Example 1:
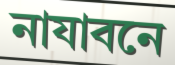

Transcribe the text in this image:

নাযাবনে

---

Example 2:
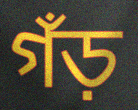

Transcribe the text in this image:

গঁড়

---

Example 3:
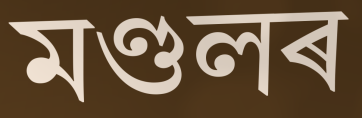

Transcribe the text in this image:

মণ্ডলৰ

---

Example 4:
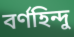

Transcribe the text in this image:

বৰ্ণহিন্দু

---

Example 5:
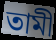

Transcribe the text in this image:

তামী